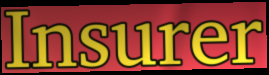
Insurer